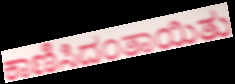
ಕಾಣಿಸಿದಂತಾಯಿತು